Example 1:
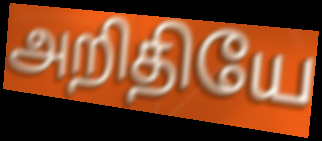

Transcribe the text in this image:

அறிதியே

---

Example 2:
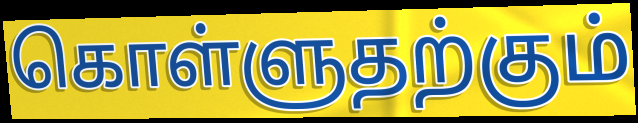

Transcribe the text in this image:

கொள்ளுதற்கும்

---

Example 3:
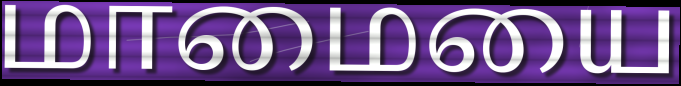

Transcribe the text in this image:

மாமையை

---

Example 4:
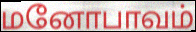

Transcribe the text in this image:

மனோபாவம்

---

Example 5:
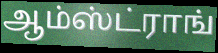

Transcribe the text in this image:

ஆம்ஸ்ட்ராங்